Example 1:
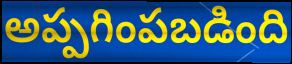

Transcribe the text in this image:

అప్పగింపబడింది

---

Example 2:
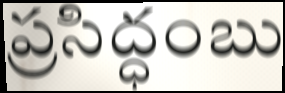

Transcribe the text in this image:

ప్రసిద్ధంబు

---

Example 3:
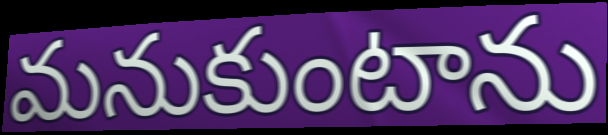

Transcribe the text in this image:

మనుకుంటాను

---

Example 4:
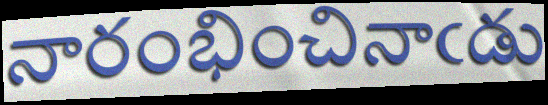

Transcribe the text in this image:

నారంభించినాఁడు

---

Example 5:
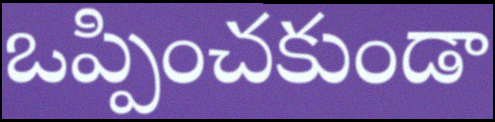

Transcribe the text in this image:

ఒప్పించకుండా